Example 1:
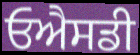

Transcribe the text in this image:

ਓਐਸਡੀ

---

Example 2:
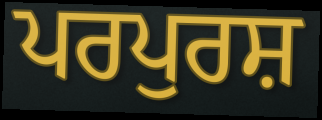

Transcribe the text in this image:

ਪਰਪੁਰਸ਼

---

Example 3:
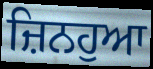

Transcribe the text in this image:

ਜ਼ਿਨਹੁਆ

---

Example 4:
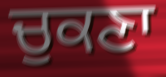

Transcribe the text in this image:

ਚੁਕਣਾ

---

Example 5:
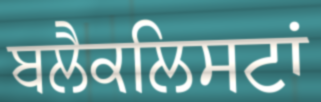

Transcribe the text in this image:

ਬਲੈਕਲਿਸਟਾਂ